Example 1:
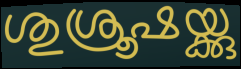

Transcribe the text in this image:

ശുശ്രൂഷയ്ക്കു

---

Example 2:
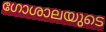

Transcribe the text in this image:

ഗോശാലയുടെ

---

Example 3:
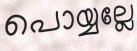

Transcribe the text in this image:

പൊയ്യല്ലേ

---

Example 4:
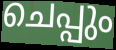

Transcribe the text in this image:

ചെപ്പും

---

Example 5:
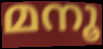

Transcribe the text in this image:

മനൂ